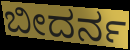
ಬೀದರ್ನ